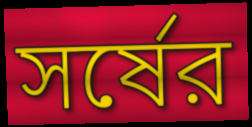
সর্ষের